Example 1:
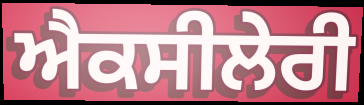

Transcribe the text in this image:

ਐਕਸੀਲੇਰੀ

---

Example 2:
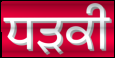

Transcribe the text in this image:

ਧੜਕੀ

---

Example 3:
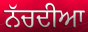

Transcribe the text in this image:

ਨੱਚਦੀਆ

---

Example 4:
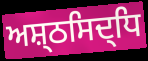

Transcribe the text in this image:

ਅਸ਼੍ਠਸਿਦ੍ਧਿ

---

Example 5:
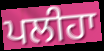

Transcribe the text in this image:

ਪਲੀਹਾ